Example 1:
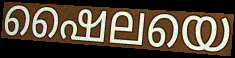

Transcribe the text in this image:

ഷൈലയെ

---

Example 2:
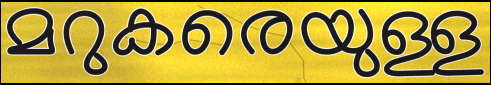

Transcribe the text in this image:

മറുകരെയുള്ള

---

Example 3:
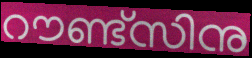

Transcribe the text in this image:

റൗണ്ട്സിനു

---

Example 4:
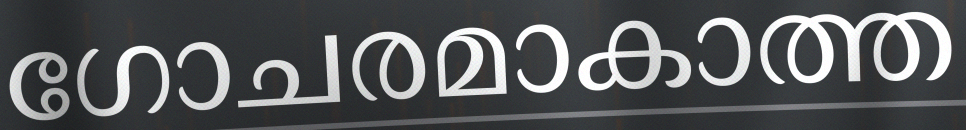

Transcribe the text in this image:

ഗോചരമാകാത്ത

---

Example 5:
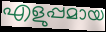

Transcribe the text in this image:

എളുപ്പമായ